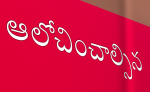
ఆలోచించాల్సిన